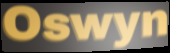
Oswyn